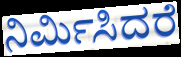
ನಿರ್ಮಿಸಿದರೆ